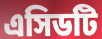
এসিডটি